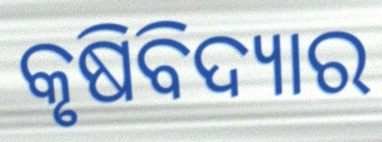
କୃଷିବିଦ୍ୟାର